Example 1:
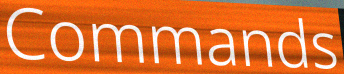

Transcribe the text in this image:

Commands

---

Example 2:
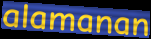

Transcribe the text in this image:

alamanan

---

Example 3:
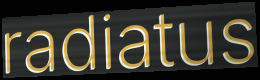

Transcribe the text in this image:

radiatus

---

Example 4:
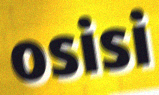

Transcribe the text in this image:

osisi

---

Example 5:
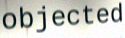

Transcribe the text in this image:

objected